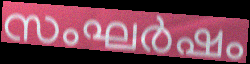
സംഘർഷം